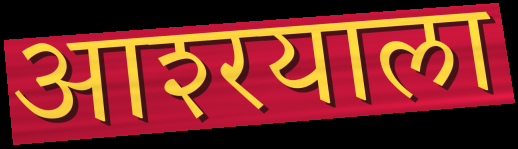
आश्रयाला